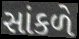
સાંકળે